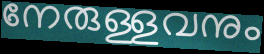
നേരുള്ളവനും